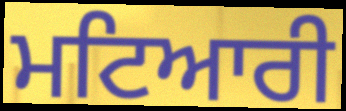
ਮਟਿਆਰੀ